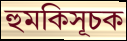
হুমকিসূচক